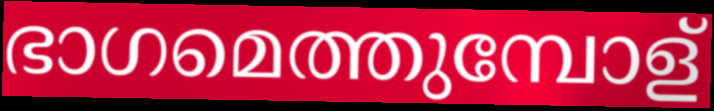
ഭാഗമെത്തുമ്പോള്